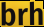
brh